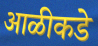
आळीकडे